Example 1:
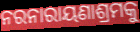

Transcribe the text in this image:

ନରନାରାୟଣାଶ୍ରମକୁ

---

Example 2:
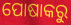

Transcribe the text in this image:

ପୋଷାକରୁ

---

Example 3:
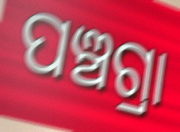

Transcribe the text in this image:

ପଞ୍ଚଗ୍ରା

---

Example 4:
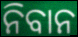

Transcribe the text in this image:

ନିବାନ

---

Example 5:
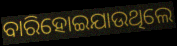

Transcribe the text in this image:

ବାରିହୋଇଯାଉଥିଲେ